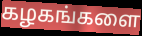
கழகங்களை